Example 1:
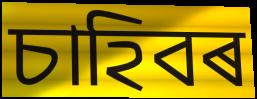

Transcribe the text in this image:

চাহিবৰ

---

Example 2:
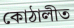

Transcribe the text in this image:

কোঠালীত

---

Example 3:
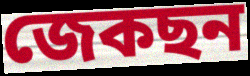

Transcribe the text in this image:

জেকছন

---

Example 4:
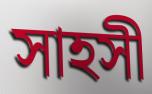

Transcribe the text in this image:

সাহসী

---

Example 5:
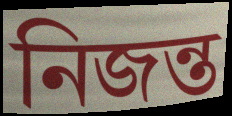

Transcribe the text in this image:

নিজন্ত